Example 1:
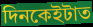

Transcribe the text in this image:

দিনকেইটাত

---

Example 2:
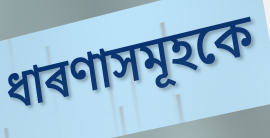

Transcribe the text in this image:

ধাৰণাসমূহকে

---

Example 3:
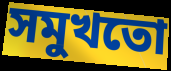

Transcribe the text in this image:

সমুখতো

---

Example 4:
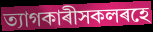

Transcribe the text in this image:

ত্যাগকাৰীসকলৰহে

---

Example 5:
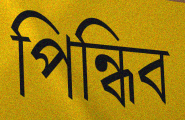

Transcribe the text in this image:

পিন্ধিব